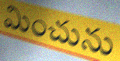
మించును